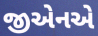
જીએનએ